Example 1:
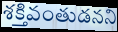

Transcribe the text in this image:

శక్తివంతుడనని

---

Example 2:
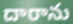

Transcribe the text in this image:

దారాను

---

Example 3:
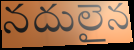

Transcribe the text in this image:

నదులైన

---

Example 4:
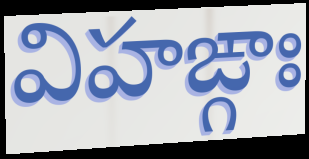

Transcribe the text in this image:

విహఙ్గాః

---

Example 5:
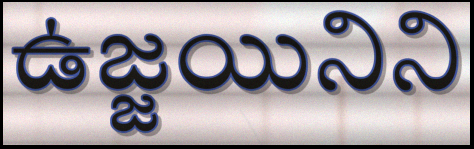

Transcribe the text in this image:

ఉజ్జయినిని